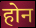
होन